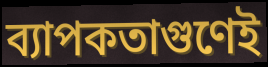
ব্যাপকতাগুণেই